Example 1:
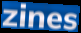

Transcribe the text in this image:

zines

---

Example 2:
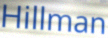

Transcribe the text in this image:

Hillman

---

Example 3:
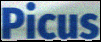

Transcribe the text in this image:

Picus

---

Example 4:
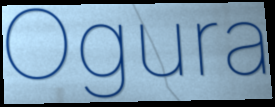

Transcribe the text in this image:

Ogura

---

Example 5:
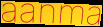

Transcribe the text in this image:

aanma